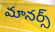
మానర్స్